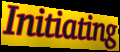
Initiating